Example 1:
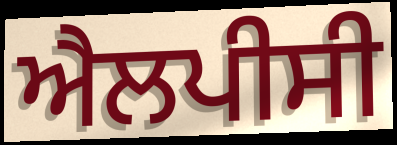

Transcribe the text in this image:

ਐਲਪੀਸੀ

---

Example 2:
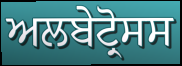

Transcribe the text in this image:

ਅਲਬੇਟ੍ਰੋਸਸ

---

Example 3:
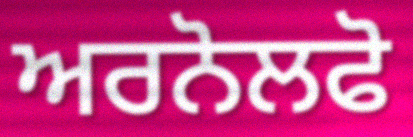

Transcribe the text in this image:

ਅਰਨੋਲਫੋ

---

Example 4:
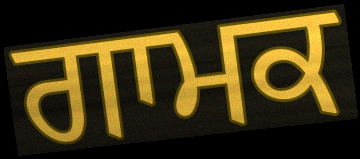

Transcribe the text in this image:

ਗਾਮਕ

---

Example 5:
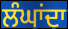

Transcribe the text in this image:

ਲੰਘਾਂਦਾ